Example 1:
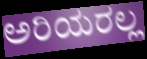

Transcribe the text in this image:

ಅರಿಯರಲ್ಲ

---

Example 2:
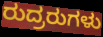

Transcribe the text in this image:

ರುದ್ರರುಗಳು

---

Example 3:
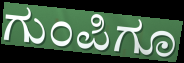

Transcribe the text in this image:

ಗುಂಪಿಗೂ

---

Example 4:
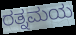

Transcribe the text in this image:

ರತ್ನಮಯ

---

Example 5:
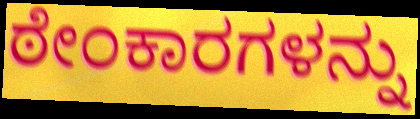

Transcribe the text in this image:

ಠೇಂಕಾರಗಳನ್ನು